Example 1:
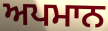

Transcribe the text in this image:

ਅਪਮਾਨ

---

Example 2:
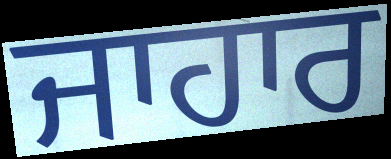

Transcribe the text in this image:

ਜਾਹਾਰ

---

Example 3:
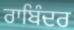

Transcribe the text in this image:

ਰਾਬਿੰਦਰ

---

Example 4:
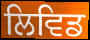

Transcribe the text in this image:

ਲਿਵਿਡ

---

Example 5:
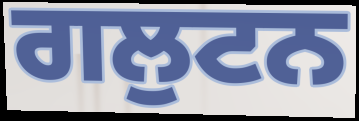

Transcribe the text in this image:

ਗਲੁਟਨ